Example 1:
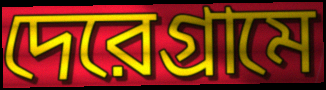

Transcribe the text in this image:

দেরেগ্রামে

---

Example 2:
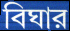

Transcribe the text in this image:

বিঘার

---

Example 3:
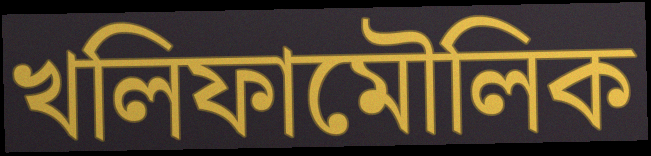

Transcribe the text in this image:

খলিফামৌলিক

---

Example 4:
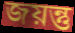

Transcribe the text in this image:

জয়ন্তু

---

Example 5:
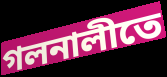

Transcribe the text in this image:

গলনালীতে